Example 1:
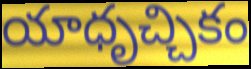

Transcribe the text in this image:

యాధృచ్చికం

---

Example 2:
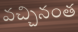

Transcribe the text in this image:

వచ్చినంత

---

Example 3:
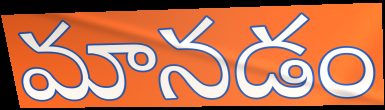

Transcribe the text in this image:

మానడం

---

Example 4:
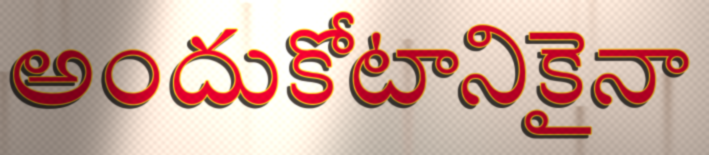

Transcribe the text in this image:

అందుకోటానికైనా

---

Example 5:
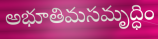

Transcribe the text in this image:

అభూతిమసమృద్ధిం